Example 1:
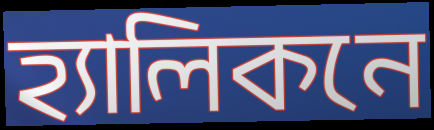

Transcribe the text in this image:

হ্যালিকনে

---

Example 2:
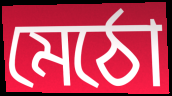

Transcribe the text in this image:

মেঠো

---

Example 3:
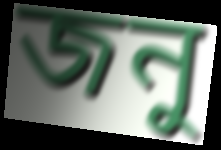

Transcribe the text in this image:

জনু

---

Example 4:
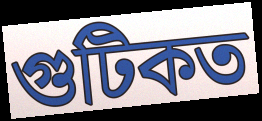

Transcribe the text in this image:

গুটিকত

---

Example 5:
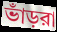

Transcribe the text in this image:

ভাঁড়রা